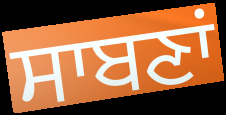
ਸਾਬਣਾਂ